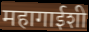
महागाईशी